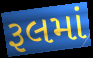
રૂલમાં